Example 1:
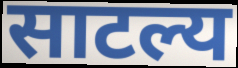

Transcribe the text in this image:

साटल्य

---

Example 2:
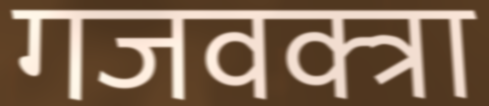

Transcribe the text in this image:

गजवक्त्रा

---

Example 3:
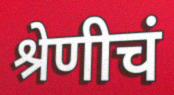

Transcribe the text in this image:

श्रेणीचं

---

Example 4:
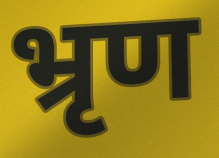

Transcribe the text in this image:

भ्रृण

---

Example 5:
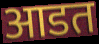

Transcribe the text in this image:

आडत